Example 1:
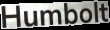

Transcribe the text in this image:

Humbolt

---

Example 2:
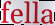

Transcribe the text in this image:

fella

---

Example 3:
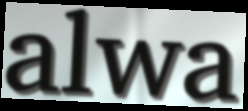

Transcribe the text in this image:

alwa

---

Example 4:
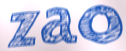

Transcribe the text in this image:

zao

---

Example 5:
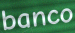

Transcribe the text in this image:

banco